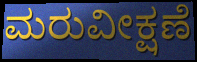
ಮರುವೀಕ್ಷಣೆ